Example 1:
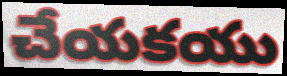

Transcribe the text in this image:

చేయకయు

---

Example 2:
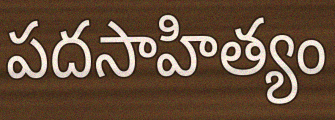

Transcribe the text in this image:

పదసాహిత్యం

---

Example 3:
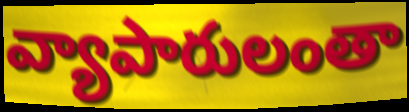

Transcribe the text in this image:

వ్యాపారులంతా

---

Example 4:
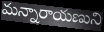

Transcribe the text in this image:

మన్నారాయణుని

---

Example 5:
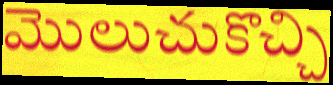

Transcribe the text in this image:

మొలుచుకొచ్చి